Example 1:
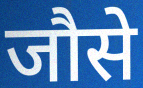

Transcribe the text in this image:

जौसे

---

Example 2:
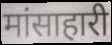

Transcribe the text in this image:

मांसाहारी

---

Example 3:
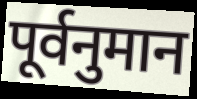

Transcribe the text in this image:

पूर्वनुमान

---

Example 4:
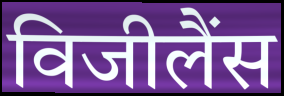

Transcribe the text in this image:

विजीलैंस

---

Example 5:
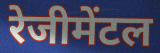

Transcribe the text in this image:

रेजीमेंटल